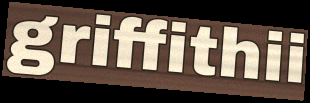
griffithii